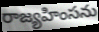
రాజ్యహింసను